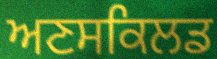
ਅਣਸਕਿਲਡ